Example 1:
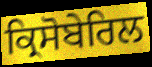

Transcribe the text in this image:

ਕ੍ਰਿਸੋਬੇਰਿਲ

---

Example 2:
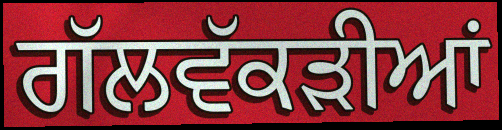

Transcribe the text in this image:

ਗੱਲਵੱਕੜੀਆਂ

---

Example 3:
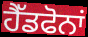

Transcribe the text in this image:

ਹੈੱਡਫੋਨਾਂ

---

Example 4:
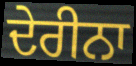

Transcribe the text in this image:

ਦੇਰੀਨਾ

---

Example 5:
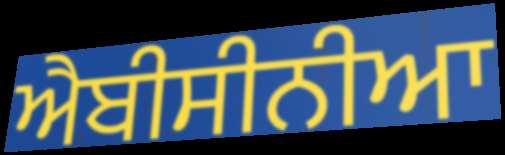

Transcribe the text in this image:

ਐਬੀਸੀਨੀਆ